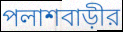
পলাশবাড়ীর